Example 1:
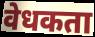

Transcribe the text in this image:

वेधकता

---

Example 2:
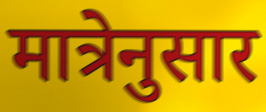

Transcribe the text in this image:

मात्रेनुसार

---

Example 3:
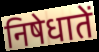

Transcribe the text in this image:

निषेधातें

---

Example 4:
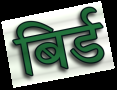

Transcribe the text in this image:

बिर्ड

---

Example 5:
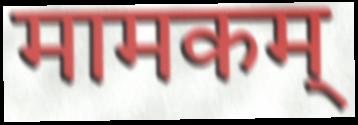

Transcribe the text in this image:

मामकम्